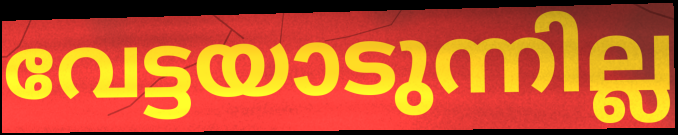
വേട്ടയാടുന്നില്ല